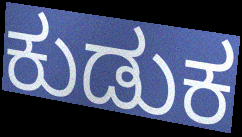
ಕುಡುಕ